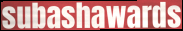
subashawards